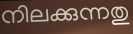
നിലക്കുന്നതു